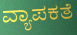
ವ್ಯಾಪಕತೆ